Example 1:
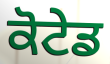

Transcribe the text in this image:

ਕੋਟੇਡ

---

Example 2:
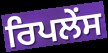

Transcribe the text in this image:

ਰਿਪਲੇਂਸ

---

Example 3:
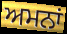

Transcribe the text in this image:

ਅਮਨਾਂ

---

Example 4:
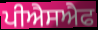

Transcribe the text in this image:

ਪੀਐਸਐਫ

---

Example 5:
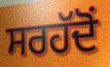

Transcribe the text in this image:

ਸਰਹੱਦੋਂ